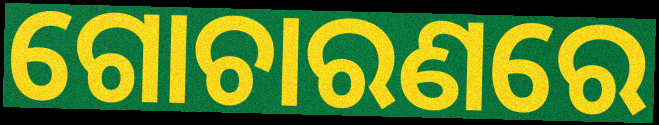
ଗୋଚାରଣରେ